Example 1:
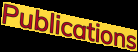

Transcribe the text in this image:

Publications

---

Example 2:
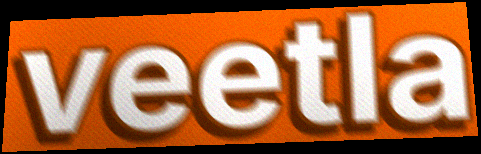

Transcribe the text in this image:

veetla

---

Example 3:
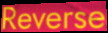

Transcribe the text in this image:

Reverse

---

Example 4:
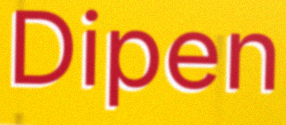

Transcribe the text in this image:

Dipen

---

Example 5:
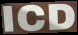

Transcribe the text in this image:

ICD